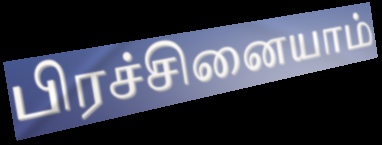
பிரச்சினையாம்